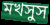
মখসুস